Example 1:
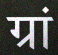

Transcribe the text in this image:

ग्रां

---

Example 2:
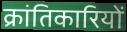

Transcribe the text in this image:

क्रांतिकारियों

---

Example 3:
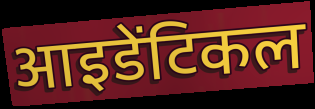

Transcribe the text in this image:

आइडेंटिकल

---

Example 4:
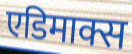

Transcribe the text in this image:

एडिमाक्स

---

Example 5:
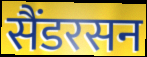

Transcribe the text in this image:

सैंडरसन